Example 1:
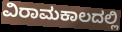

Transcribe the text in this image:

ವಿರಾಮಕಾಲದಲ್ಲಿ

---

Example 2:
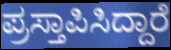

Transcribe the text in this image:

ಪ್ರಸ್ತಾಪಿಸಿದ್ದಾರೆ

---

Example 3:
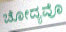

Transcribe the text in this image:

ಚೋದ್ಯವೊ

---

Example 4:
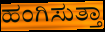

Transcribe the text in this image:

ಹಂಗಿಸುತ್ತಾ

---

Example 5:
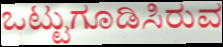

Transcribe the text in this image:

ಒಟ್ಟುಗೂಡಿಸಿರುವ